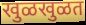
खुळखुळत